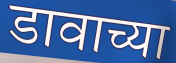
डावाच्या